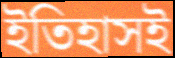
ইতিহাসই